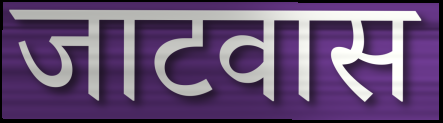
जाटवास